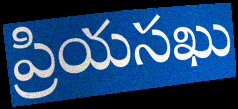
ప్రియసఖు